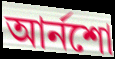
আর্নশো